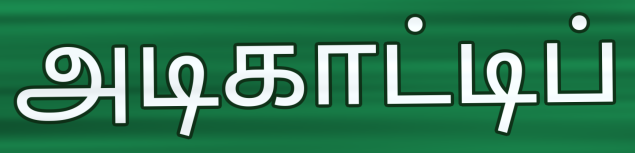
அடிகாட்டிப்